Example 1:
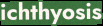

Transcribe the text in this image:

ichthyosis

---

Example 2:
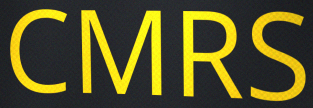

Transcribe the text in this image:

CMRS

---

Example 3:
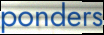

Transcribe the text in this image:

ponders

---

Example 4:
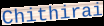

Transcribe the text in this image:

Chithirai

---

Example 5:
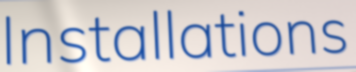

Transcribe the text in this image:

Installations